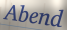
Abend